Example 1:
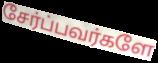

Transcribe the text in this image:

சேர்ப்பவர்களே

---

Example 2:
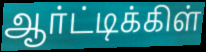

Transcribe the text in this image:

ஆர்ட்டிக்கிள்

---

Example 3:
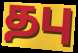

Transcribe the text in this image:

தபு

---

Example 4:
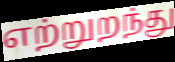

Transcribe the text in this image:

எற்றுறந்து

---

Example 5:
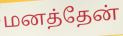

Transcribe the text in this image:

மனத்தேன்